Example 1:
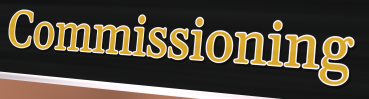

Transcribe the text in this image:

Commissioning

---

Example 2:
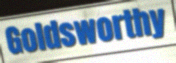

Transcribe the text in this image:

Goldsworthy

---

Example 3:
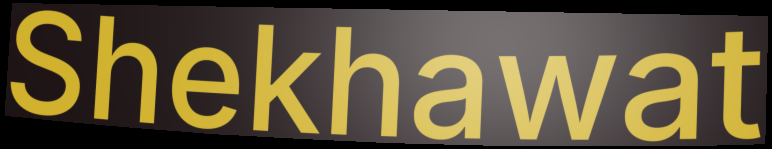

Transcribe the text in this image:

Shekhawat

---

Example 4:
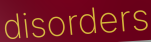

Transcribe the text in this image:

disorders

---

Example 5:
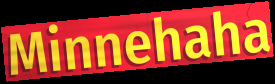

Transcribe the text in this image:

Minnehaha